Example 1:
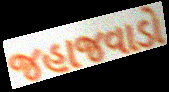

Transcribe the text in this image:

જહાજવાડો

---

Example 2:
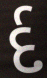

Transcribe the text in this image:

ર્દ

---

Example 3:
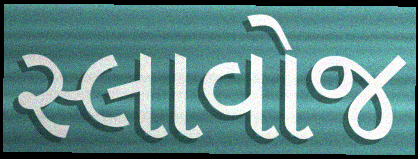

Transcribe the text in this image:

સ્લાવોજ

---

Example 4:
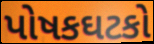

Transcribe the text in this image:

પોષકઘટકો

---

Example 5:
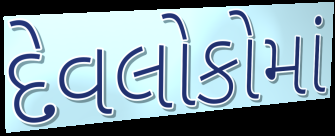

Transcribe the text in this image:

દેવલોકોમાં